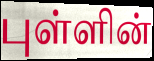
புள்ளின்